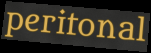
peritonal